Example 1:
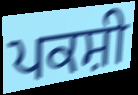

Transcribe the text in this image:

ਪਕਸ਼ੀ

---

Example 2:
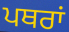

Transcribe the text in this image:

ਪਥਰਾਂ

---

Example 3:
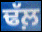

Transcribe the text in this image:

ਢੱਲ਼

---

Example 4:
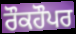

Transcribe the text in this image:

ਰੌਕਹੌਪਰ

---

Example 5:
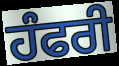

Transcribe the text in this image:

ਹੰਫਰੀ